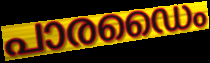
പാരഡൈം